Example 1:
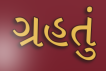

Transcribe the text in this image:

ગ્રહતું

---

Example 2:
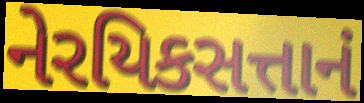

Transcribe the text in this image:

નેરયિકસત્તાનં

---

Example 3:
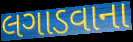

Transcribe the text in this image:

લગાડવાના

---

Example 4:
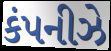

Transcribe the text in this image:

કંપનીઝે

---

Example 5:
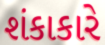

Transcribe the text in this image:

શંકાકારે